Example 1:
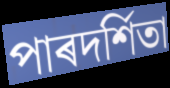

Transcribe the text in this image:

পাৰদৰ্শিতা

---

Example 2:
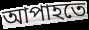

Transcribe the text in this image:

আপাহতে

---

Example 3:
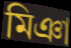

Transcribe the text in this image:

মিঞা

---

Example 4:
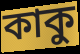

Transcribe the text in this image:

কাকু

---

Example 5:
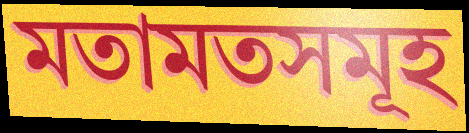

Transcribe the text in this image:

মতামতসমূহ